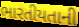
ભારતીયતાની